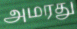
அமரது